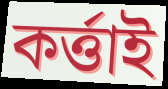
কৰ্ত্তাই